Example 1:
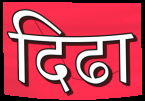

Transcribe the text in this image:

दिढा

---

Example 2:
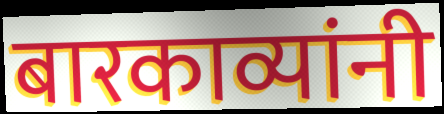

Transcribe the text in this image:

बारकाव्यांनी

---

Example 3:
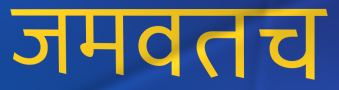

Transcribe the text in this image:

जमवतच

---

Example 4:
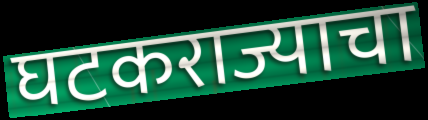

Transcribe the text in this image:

घटकराज्याचा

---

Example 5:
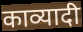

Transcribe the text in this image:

काव्यादी